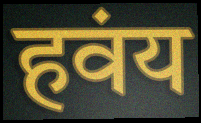
हवंय